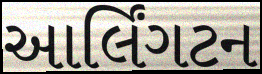
આર્લિંગટન